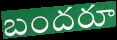
బందరూ